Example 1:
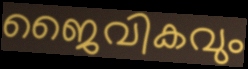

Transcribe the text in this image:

ജൈവികവും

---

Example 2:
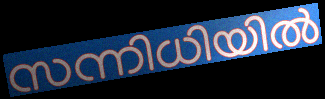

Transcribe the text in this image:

സന്നിധിയിൽ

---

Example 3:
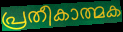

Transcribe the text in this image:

പ്രതീകാത്മക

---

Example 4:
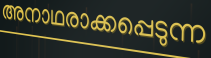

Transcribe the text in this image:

അനാഥരാക്കപ്പെടുന്ന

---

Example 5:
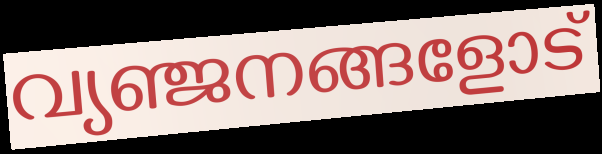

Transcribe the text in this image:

വ്യഞ്ജനങ്ങളോട്